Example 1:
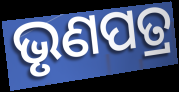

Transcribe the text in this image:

ଭୃଣପତ୍ର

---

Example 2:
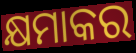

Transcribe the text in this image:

କ୍ଷମାକର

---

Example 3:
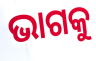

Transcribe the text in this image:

ଭାଗକୁ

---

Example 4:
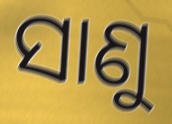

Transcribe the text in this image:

ସାଣୁ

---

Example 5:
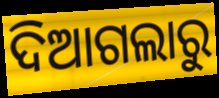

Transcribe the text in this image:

ଦିଆଗଲାରୁ